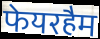
फेयरहैम